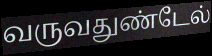
வருவதுண்டேல்